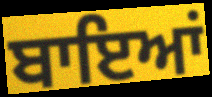
ਬਾਇਆਂ